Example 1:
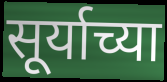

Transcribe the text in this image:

सूर्याच्या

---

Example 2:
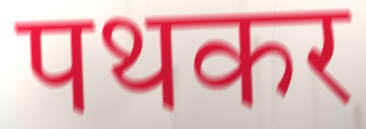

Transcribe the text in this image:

पथकर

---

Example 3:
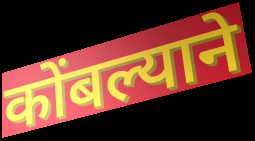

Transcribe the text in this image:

कोंबल्याने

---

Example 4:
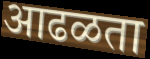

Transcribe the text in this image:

आढळता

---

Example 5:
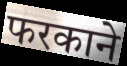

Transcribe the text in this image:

फरकाने